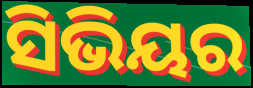
ସିଭିୟର